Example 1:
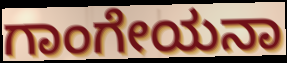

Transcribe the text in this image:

ಗಾಂಗೇಯನಾ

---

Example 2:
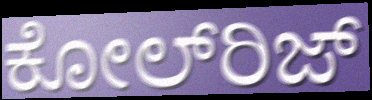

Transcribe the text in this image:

ಕೋಲ್‍ರಿಜ್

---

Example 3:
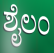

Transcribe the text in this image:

ಶೈಲಂ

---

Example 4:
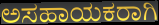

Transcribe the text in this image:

ಅಸಹಾಯಕರಾಗಿ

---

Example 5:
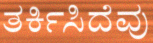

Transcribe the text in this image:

ತರ್ಕಿಸಿದೆವು